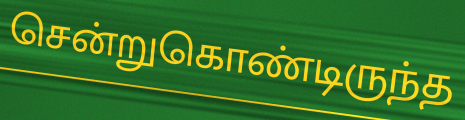
சென்றுகொண்டிருந்த